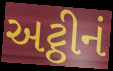
અટ્ઠીનં